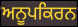
ਅਨੂਪਕਿਰਨ